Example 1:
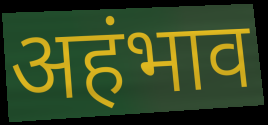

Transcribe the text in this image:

अहंभाव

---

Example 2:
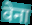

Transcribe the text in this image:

वेना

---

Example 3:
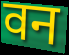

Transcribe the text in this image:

वन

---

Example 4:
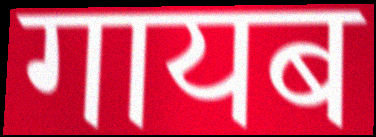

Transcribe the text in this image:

गायब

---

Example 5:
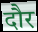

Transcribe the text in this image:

दौर